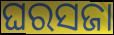
ଘରସଜା